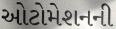
ઓટોમેશનની